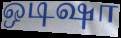
ஒடிஷா